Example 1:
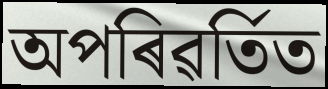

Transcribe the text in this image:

অপৰিৱৰ্তিত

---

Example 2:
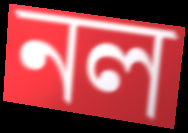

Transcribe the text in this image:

নল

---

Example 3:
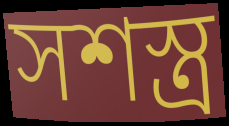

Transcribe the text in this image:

সশস্ত্ৰ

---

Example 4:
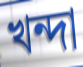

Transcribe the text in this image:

খন্দা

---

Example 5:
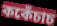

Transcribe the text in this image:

ককেঁচাচ